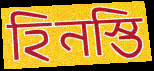
হিনস্তি